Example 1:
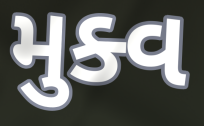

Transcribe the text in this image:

મુક્વ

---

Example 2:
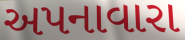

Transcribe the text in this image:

અપનાવારા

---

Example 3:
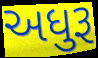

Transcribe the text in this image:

અધુરૂ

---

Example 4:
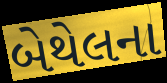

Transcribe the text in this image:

બેથેલના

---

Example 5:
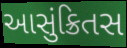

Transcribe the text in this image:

આસુંક્રિતસ